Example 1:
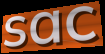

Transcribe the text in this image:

sac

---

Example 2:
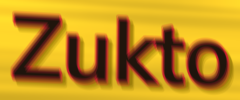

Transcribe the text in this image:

Zukto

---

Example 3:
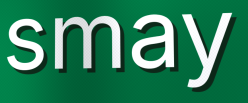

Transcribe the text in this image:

smay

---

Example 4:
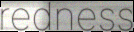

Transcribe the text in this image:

redness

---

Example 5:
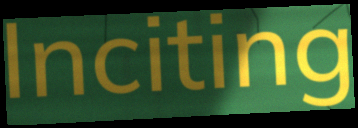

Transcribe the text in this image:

Inciting